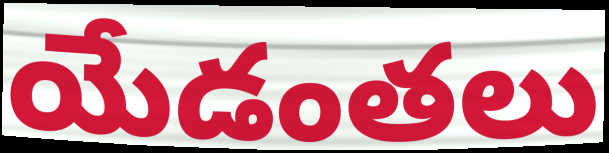
యేడంతలు